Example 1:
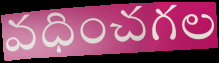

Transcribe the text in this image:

వధించగల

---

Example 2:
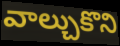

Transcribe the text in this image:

వాల్చుకొని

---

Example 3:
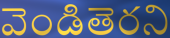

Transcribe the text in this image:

వెండితెరని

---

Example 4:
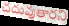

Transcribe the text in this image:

చదువుతారని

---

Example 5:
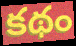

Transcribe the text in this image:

కథం